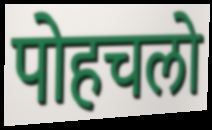
पोहचलो